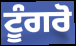
ਟੂੰਗਰੋ